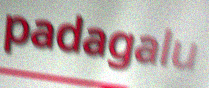
padagalu